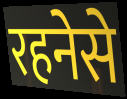
रहनेसे